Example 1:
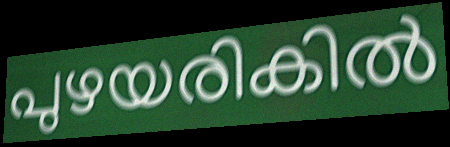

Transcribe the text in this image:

പുഴയരികിൽ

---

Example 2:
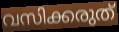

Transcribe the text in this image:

വസിക്കരുത്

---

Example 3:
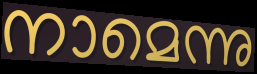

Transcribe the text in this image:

നാമെന്നു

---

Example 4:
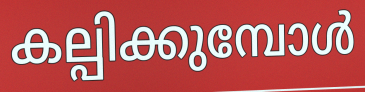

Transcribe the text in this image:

കല്പിക്കുമ്പോൾ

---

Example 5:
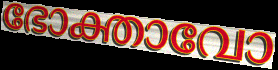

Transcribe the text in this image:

ഭോക്താവോ